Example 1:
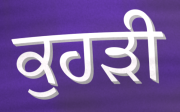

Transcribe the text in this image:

ਕੁਹੜੀ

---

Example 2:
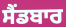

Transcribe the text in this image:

ਸੈਂਡਬਾਰ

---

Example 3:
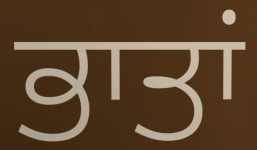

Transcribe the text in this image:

ਭਾਤਾਂ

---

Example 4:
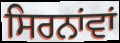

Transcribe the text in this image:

ਸਿਰਨਾਂਵਾਂ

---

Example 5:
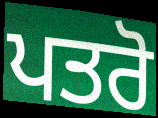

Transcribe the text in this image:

ਪਤਰੋ